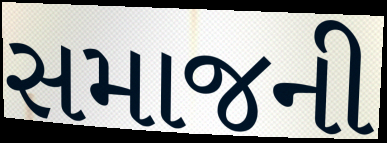
સમાજની